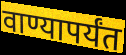
वाण्यापर्यंत